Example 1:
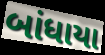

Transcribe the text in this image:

બાંધાયા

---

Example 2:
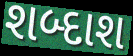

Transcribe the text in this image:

શબ્દાશ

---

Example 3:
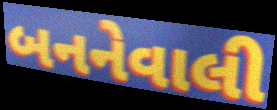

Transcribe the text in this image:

બનનેવાલી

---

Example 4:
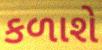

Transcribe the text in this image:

કળાશે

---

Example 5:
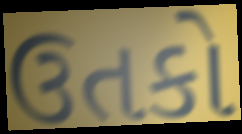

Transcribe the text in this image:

ઉતકો